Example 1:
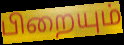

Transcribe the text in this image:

பிறையும்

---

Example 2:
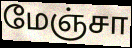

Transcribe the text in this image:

மேஞ்சா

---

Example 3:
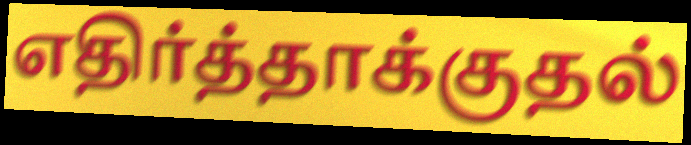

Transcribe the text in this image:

எதிர்த்தாக்குதல்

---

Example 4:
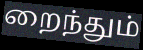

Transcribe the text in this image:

றைந்தும்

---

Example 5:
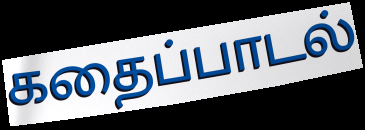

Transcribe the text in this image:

கதைப்பாடல்